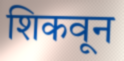
शिकवून